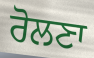
ਰੋਲਣਾ